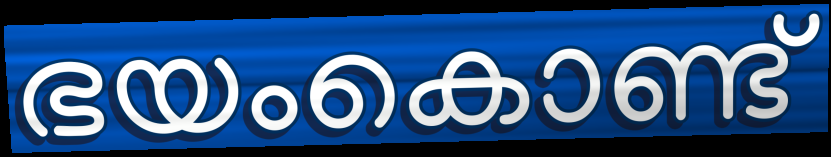
ഭയംകൊണ്ട്